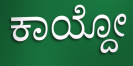
ಕಾಯ್ದೋ